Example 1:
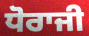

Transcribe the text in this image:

ਧੋਰਾਜੀ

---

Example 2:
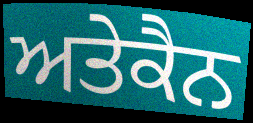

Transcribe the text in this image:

ਅਤੇਕੈਨ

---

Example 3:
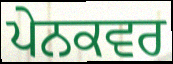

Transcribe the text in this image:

ਪੇਨਕਵਰ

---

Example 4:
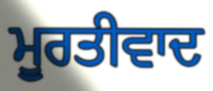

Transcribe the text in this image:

ਮੂਰਤੀਵਾਦ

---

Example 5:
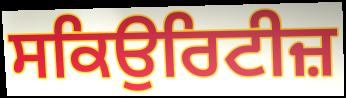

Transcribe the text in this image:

ਸਕਿਉਰਿਟੀਜ਼